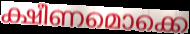
ക്ഷീണമൊക്കെ